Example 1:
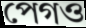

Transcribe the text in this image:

পেগও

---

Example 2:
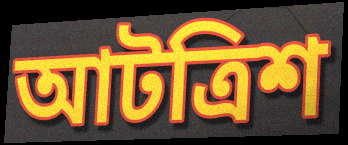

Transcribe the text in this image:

আটত্রিশ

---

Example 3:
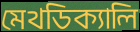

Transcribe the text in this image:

মেথডিক্যালি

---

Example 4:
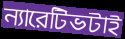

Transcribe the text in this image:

ন্যারেটিভটাই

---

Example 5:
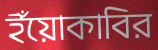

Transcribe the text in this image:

ইঁয়োকাবির